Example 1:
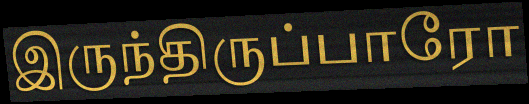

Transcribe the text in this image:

இருந்திருப்பாரோ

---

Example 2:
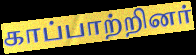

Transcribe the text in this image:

காப்பாற்றினர்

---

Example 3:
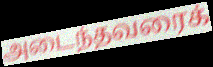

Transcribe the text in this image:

அடைந்தவரைக்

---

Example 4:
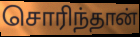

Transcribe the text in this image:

சொரிந்தான்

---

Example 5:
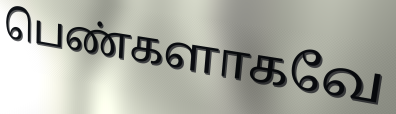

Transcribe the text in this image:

பெண்களாகவே